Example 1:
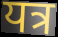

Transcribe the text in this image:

यत्र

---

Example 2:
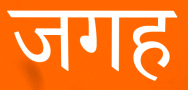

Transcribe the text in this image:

जगह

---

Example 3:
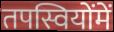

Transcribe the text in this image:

तपस्वियोंमें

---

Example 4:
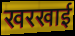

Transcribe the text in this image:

खरखाई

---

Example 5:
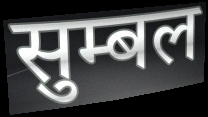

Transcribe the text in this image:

सुम्बल